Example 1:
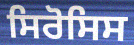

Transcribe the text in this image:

ਸਿਰੋਸਿਸ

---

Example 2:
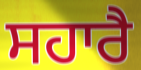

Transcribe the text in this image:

ਸਹਾਰੈ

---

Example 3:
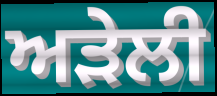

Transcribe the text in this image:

ਅੜੇਲੀ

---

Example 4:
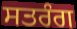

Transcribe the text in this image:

ਸਤਰੰਗ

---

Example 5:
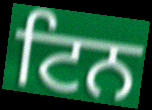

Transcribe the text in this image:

ਟਿਨ